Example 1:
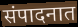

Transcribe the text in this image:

संपादनात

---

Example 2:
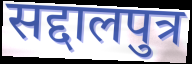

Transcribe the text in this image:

सद्दालपुत्र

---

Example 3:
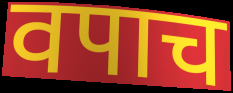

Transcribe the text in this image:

वपाच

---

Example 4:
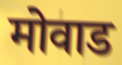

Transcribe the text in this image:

मोवाड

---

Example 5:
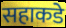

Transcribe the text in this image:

सहाकडे